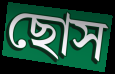
ছোস